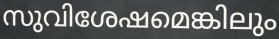
സുവിശേഷമെങ്കിലും